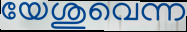
യേശുവെന്ന